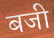
बजी